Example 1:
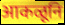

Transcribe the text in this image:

आकळूनि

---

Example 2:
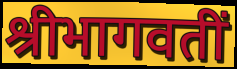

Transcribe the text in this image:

श्रीभागवतीं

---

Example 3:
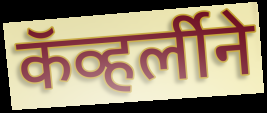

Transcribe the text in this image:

कॅव्हर्लीने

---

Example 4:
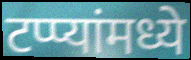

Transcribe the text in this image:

टप्प्यांमध्ये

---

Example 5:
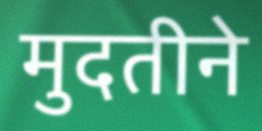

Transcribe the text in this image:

मुदतीने